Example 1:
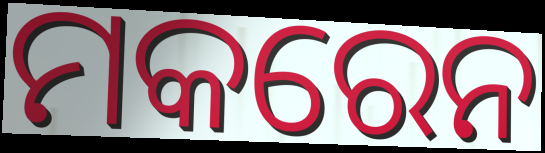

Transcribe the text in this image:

ମକରେନ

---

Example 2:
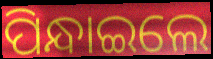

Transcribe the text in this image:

ପିନ୍ଧାଇଲେ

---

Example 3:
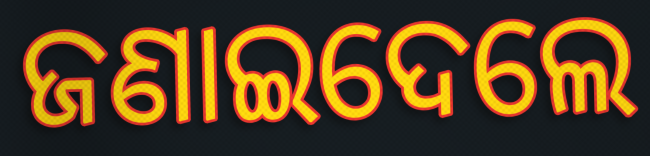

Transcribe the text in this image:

ଜଣାଇଦେଲେ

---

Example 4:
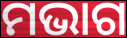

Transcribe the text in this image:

ମଭାଗ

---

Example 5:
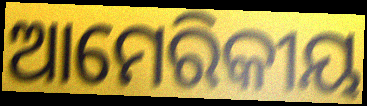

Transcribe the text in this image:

ଆମେରିକୀୟ